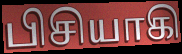
பிசியாகி